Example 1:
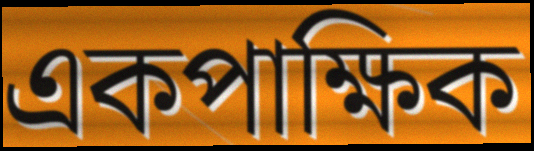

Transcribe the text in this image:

একপাক্ষিক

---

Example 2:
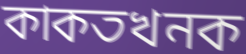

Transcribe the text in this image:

কাকতখনক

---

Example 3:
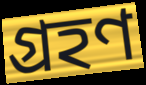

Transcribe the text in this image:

গ্ৰহণ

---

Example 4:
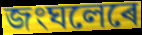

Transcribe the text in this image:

জংঘলেৰে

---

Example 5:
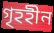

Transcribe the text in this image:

গৃহহীন